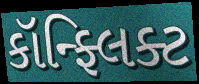
કૉન્ફ્લિક્ટ